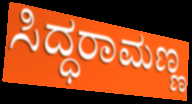
ಸಿದ್ಧರಾಮಣ್ಣ